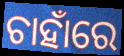
ଚାହାଁରେ